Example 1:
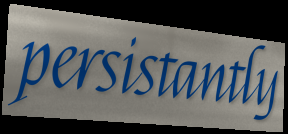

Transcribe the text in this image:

persistantly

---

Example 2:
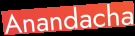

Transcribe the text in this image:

Anandacha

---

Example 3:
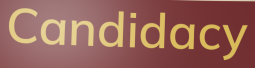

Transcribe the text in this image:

Candidacy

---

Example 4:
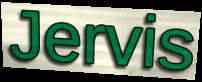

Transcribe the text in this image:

Jervis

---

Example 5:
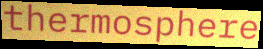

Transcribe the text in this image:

thermosphere